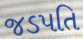
જડપતિ